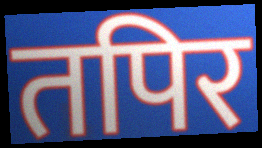
तपिर